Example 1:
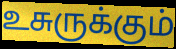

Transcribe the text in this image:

உசுருக்கும்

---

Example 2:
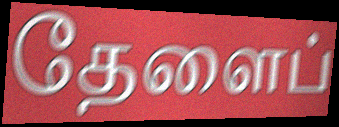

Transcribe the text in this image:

தேளைப்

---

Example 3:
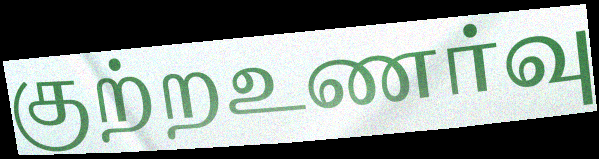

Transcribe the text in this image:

குற்றஉணர்வு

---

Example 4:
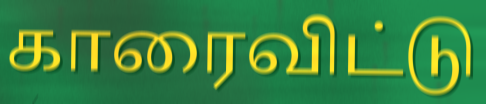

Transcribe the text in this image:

காரைவிட்டு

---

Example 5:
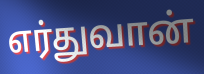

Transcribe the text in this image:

எர்துவான்